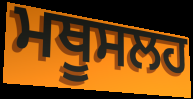
ਮਥੂਸਲਹ